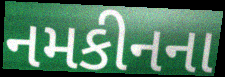
નમકીનના